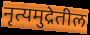
नृत्यमुद्रेतील